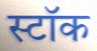
स्‍टॉक